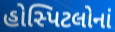
હોસ્પિટલોનાં